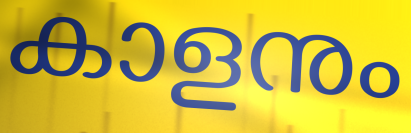
കാളനും